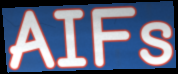
AIFs